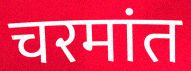
चरमांत